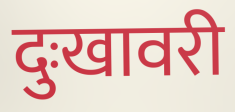
दुःखावरी